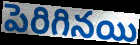
పెరిగినయి